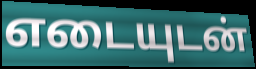
எடையுடன்